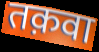
तक़वा